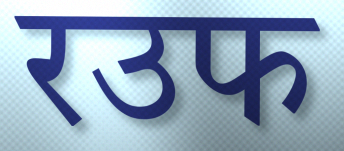
रउफ